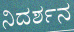
ನಿದರ್ಶನ